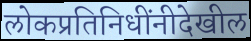
लोकप्रतिनिधींनीदेखील